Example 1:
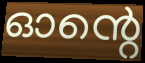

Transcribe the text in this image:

ഓന്റെ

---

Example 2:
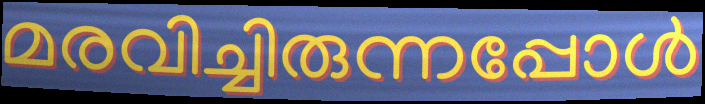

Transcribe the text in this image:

മരവിച്ചിരുന്നപ്പോൾ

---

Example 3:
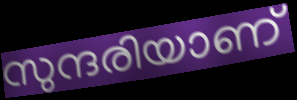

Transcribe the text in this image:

സുന്ദരിയാണ്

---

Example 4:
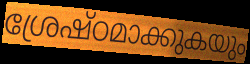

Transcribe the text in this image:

ശ്രേഷ്ഠമാക്കുകയും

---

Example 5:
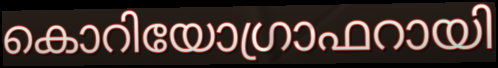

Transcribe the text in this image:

കൊറിയോഗ്രാഫറായി